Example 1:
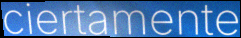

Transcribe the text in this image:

ciertamente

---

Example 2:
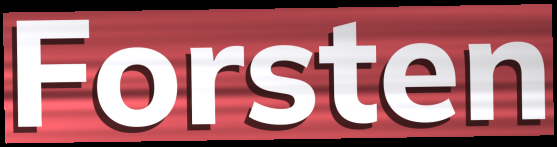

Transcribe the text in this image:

Forsten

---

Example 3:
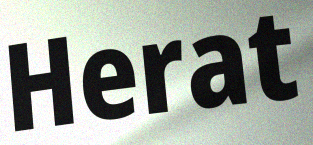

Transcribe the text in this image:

Herat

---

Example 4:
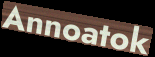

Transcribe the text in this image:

Annoatok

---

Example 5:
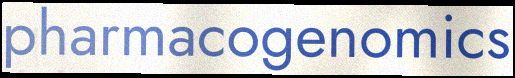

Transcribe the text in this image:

pharmacogenomics